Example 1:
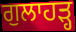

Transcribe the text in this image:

ਗੁਲਾਹੜ੍ਹ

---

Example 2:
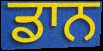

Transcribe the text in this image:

ਡਾਨ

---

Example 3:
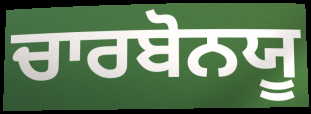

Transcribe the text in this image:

ਚਾਰਬੋਨਯੂ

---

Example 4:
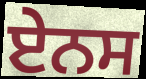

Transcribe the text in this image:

ਏਨਸ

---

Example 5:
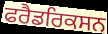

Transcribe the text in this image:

ਫਰੈਡਰਿਕਸਨ